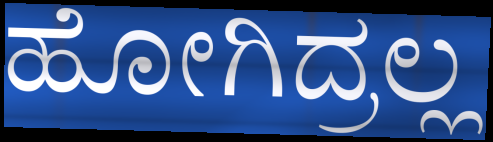
ಹೋಗಿದ್ರಲ್ಲ